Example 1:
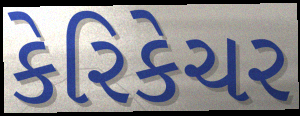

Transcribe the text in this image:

કેરિકેચર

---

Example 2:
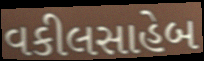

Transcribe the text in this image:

વકીલસાહેબ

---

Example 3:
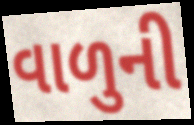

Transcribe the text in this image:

વાળુની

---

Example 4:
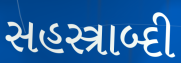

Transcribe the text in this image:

સહસ્ત્રાબ્દી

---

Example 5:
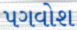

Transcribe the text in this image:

પગવોશ